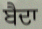
ਬੈਦਾ